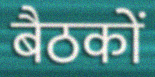
बैठकों